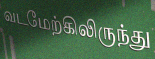
வடமேற்கிலிருந்து